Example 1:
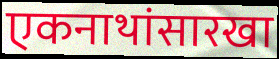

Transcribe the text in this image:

एकनाथांसारखा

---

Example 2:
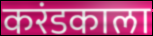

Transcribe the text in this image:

करंडकाला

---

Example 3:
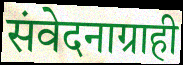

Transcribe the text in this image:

संवेदनाग्राही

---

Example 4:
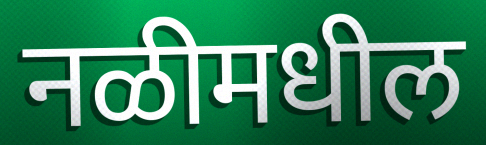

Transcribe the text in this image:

नळीमधील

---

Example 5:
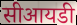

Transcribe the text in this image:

सीआयडी